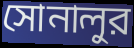
সোনালুর